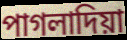
পাগলাদিয়া